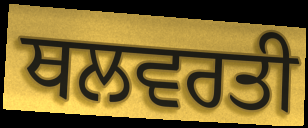
ਥਲਵਰਤੀ